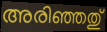
അരിഞ്ഞതു്